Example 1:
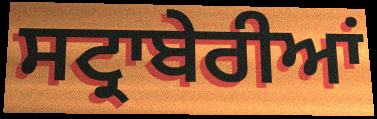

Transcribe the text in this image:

ਸਟ੍ਰਾਬੇਰੀਆਂ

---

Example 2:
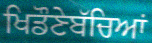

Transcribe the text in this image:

ਖਿਡੌਣੇਬੱਚਿਆਂ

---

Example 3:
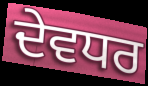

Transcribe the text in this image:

ਦੇਵਧਰ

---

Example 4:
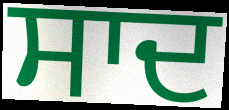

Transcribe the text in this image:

ਸਾਦ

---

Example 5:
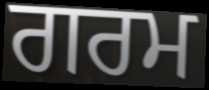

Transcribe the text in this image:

ਗਰਮ